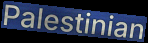
Palestinian